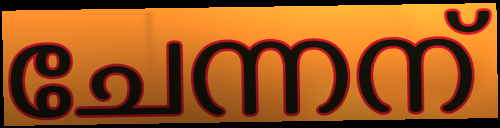
ചേന്നന്